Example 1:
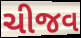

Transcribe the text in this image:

ચીજવ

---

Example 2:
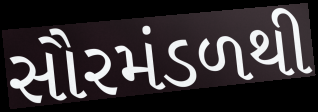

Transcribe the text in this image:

સૌરમંડળથી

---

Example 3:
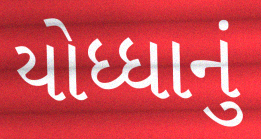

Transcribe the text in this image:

યોધ્ધાનું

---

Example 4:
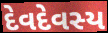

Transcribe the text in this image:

દેવદેવસ્ય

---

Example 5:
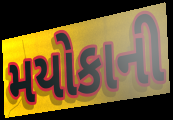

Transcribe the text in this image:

મયોકાની